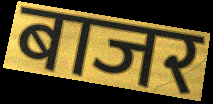
बाजर